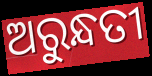
ଅରୁନ୍ଧତୀ